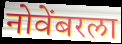
नोवेंबरला